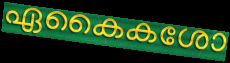
ഏകൈകശോ